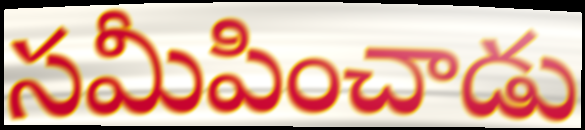
సమీపించాడు